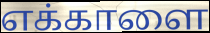
எக்காளை